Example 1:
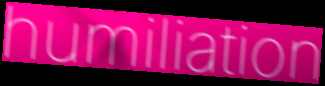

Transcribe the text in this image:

humiliation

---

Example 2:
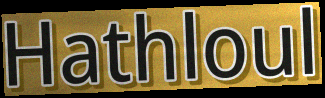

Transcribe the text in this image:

Hathloul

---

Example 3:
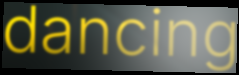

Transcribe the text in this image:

dancing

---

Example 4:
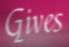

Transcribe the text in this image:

Gives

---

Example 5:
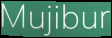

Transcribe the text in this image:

Mujibur